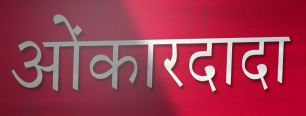
ओंकारदादा